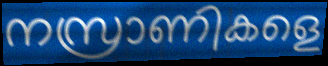
നസ്രാണികളെ